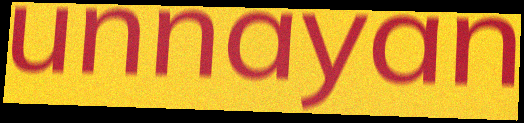
unnayan